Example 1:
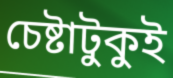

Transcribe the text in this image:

চেষ্টাটুকুই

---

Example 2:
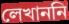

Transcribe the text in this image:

লেখাননি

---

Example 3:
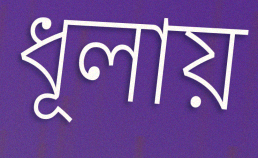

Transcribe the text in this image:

ধূলায়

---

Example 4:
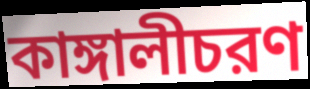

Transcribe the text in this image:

কাঙ্গালীচরণ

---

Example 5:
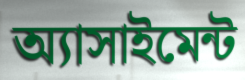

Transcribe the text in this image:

অ্যাসাইমেন্ট